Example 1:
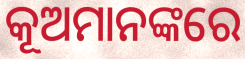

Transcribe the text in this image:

କୂଅମାନଙ୍କରେ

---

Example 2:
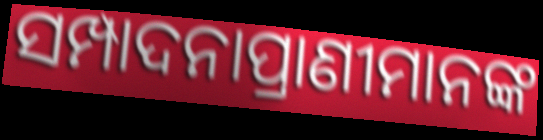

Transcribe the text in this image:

ସମ୍ପାଦନାପ୍ରାଣୀମାନଙ୍କ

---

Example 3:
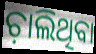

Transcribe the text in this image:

ଚ଼ାଲିଥିବା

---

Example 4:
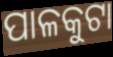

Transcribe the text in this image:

ପାଳକୁଟା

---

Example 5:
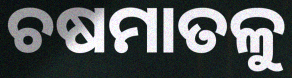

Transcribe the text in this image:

ଚଷମାତଳୁ